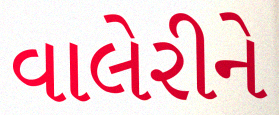
વાલેરીને